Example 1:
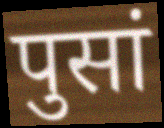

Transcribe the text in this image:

पुसां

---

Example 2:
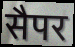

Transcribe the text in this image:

सैपर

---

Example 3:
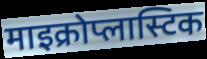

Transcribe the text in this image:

माइक्रोप्लास्टिक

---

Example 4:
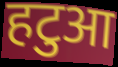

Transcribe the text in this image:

हटुआ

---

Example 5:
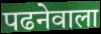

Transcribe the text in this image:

पढनेवाला